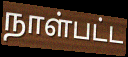
நாள்பட்ட